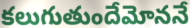
కలుగుతుందేమోననే